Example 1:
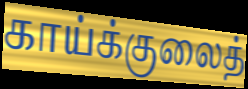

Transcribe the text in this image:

காய்க்குலைத்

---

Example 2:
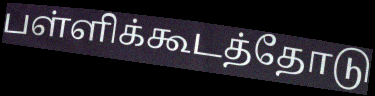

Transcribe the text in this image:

பள்ளிக்கூடத்தோடு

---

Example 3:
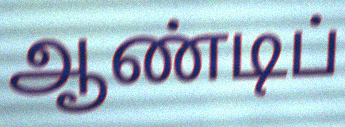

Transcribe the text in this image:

ஆண்டிப்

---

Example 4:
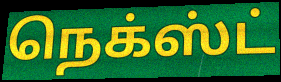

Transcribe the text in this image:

நெக்ஸ்ட்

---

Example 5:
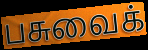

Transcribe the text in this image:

பசுவைக்